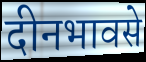
दीनभावसे